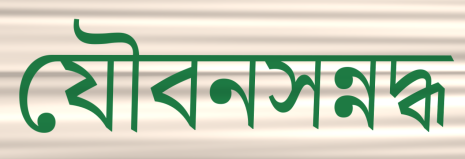
যৌবনসন্নদ্ধ